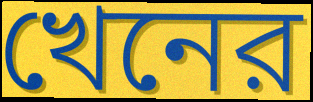
খেনের